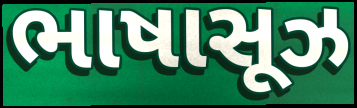
ભાષાસૂઝ